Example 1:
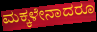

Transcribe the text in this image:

ಮಕ್ಕಳೇನಾದರೂ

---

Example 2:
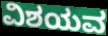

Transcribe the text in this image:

ವಿಶಯವ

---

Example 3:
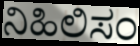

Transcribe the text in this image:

ನಿಹಿಲಿಸಂ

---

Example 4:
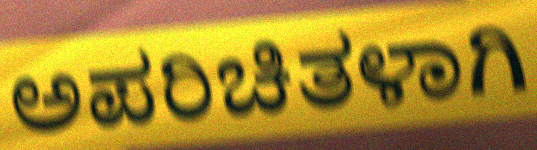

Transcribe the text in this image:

ಅಪರಿಚಿತಳಾಗಿ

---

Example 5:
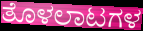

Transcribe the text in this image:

ತೊಳಲಾಟಗಳ